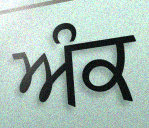
ਅੰਕ